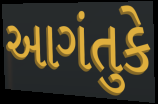
આગંતુકે